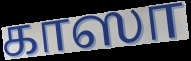
காஸா